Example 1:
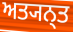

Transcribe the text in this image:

ਅਤ੍ਯਨ੍ਤ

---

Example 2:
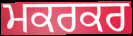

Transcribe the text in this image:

ਮਕਰਕਰ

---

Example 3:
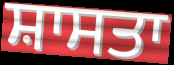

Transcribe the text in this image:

ਸ਼ਾਸਤਾ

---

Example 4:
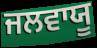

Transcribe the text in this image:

ਜਲਵਾਯੂ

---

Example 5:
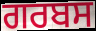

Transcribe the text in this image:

ਗਰਬਸ